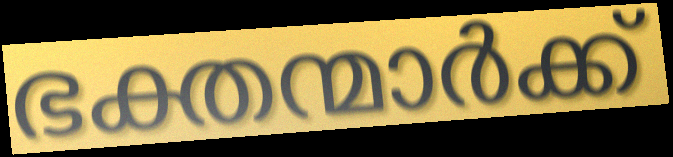
ഭക്തന്മാർക്ക്